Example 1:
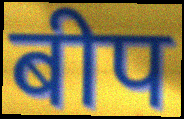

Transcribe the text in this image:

बीप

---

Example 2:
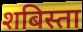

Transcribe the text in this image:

शबिस्ता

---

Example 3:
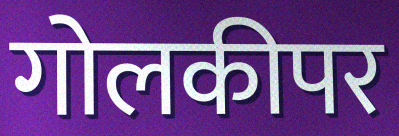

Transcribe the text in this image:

गोलकीपर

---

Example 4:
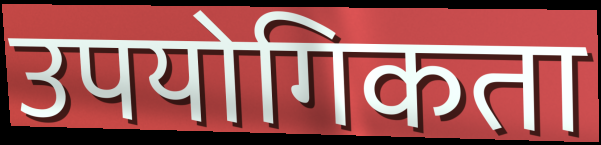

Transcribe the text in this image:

उपयोगिकता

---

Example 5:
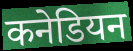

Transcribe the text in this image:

कनेडियन